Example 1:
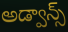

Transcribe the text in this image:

అడ్వాన్స్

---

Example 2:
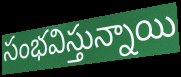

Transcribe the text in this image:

సంభవిస్తున్నాయి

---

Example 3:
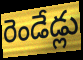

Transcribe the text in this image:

రెండేడ్లు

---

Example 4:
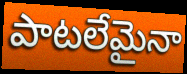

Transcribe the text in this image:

పాటలేమైనా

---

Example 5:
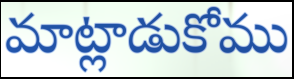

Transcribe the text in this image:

మాట్లాడుకోము